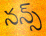
నన్స్